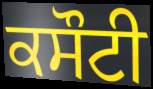
ਕਸੌਟੀ